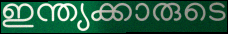
ഇന്ത്യക്കാരുടെ